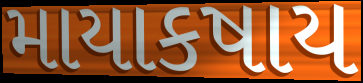
માયાકષાય